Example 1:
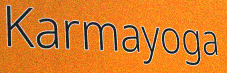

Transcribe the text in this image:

Karmayoga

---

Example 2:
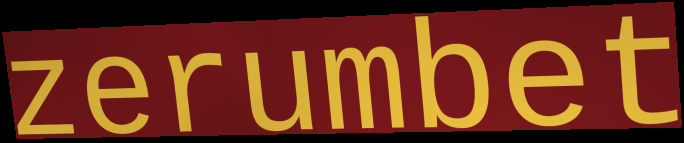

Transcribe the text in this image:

zerumbet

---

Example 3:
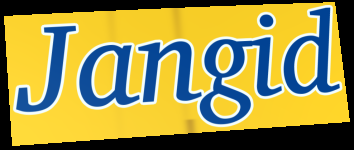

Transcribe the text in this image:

Jangid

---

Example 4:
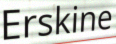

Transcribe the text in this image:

Erskine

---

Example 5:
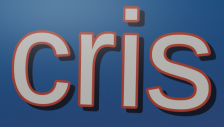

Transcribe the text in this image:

cris